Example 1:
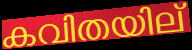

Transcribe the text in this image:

കവിതയില്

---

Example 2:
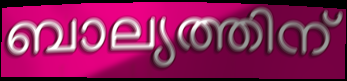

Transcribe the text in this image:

ബാല്യത്തിന്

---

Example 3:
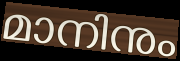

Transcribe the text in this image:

മാനിനും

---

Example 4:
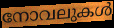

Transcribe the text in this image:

നോവലുകൾ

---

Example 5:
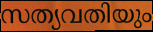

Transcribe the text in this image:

സത്യവതിയും